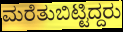
ಮರೆತುಬಿಟ್ಟಿದ್ದರು